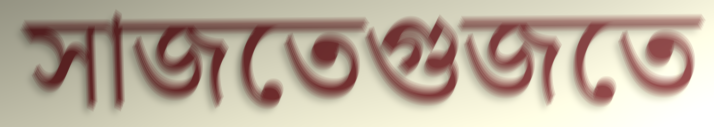
সাজতেগুজতে